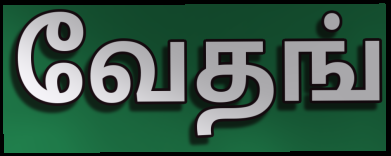
வேதங்